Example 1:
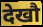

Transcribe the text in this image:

देखौ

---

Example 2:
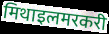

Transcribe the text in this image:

मिथाइलमरकरी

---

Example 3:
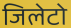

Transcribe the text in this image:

जिलेटो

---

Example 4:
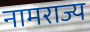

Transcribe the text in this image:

नामराज्य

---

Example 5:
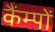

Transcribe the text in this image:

कैंम्पों